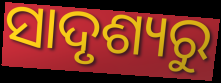
ସାଦୃଶ୍ୟରୁ